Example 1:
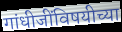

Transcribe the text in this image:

गांधीजींविषयीच्या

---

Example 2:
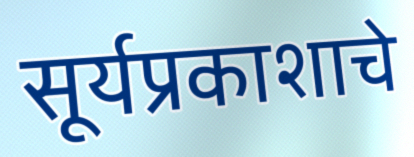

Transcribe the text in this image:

सूर्यप्रकाशाचे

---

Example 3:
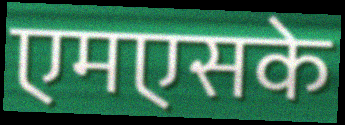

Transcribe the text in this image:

एमएसके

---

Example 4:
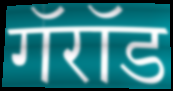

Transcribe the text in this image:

गॅरॉड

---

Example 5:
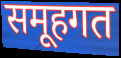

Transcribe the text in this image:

समूहगत